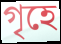
গৃহে